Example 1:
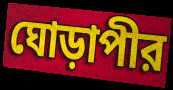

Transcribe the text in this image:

ঘোড়াপীর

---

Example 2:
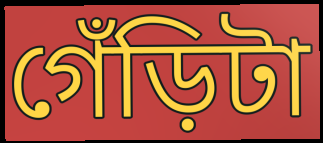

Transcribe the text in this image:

গেঁড়িটা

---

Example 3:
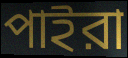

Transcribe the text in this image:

পাইরা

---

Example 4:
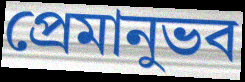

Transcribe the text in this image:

প্রেমানুভব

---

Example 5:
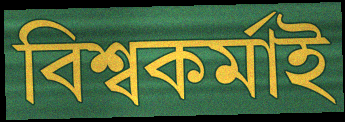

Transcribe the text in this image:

বিশ্বকর্মাই